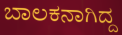
ಬಾಲಕನಾಗಿದ್ದ